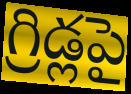
గ్రిడ్లపై